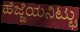
ಹೆಜ್ಜೆಯನಿಟ್ಟು